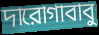
দারোগাবাবু